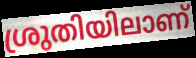
ശ്രുതിയിലാണ്